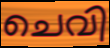
ചെവി